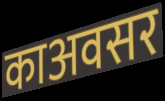
काअवसर